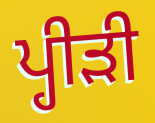
ਪ੍ਹੀੜੀ